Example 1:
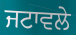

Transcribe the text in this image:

ਜਟਾਵਲੇ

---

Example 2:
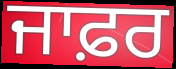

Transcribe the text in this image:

ਜਾਫ਼ਰ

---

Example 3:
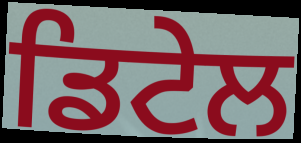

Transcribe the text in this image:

ਡਿਟੇਲ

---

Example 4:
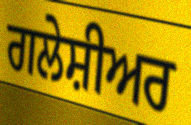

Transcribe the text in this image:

ਗਲੇਸ਼ੀਅਰ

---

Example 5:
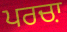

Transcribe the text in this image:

ਪਰਚ਼ਾ